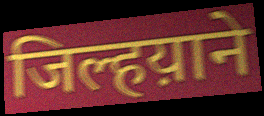
जिल्हय़ाने